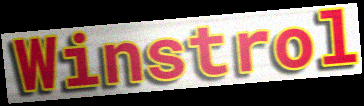
Winstrol